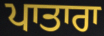
ਪਾਤਾਰਾ